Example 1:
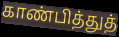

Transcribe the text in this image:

காண்பித்துத்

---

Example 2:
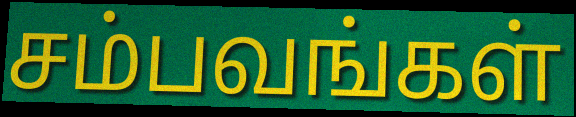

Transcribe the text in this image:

சம்பவங்கள்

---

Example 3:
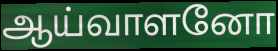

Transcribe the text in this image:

ஆய்வாளனோ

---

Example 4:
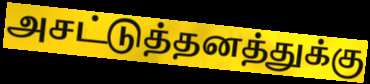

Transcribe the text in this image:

அசட்டுத்தனத்துக்கு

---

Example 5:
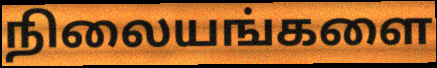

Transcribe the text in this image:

நிலையங்களை